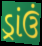
ડ્રાંઉં